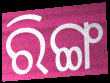
ରିଙ୍ଗ